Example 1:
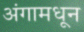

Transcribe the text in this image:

अंगामधून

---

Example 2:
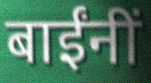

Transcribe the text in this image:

बाईंनीं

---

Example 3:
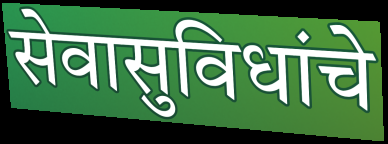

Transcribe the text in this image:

सेवासुविधांचे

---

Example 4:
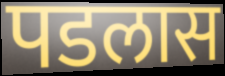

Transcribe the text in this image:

पडलास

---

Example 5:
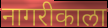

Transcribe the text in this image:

नागरीकाला